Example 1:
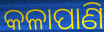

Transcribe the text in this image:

କଳାପାଣି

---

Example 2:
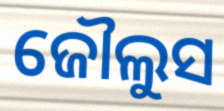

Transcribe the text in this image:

ଜୌଲୁସ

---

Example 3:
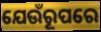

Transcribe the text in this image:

ଯେଉଁରୂପରେ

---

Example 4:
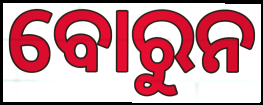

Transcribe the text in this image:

ବୋରୁନ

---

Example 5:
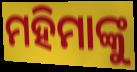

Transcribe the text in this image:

ମହିମାଙ୍କୁ